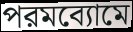
পরমব্যোমে